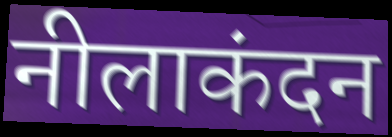
नीलाकंदन